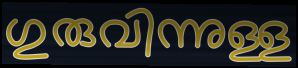
ഗുരുവിന്നുള്ള